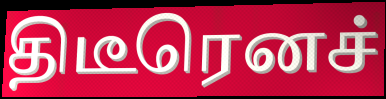
திடீரெனச்